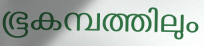
ഭൂകമ്പത്തിലും